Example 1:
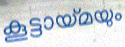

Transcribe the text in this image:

കൂട്ടായ്മയും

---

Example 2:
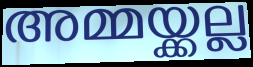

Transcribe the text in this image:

അമ്മയ്ക്കല്ല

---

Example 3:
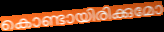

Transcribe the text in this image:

കൊണ്ടായിരിക്കുമോ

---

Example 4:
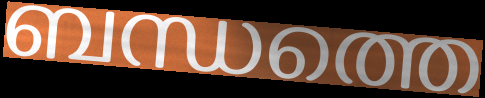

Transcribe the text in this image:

ബന്ധത്തെ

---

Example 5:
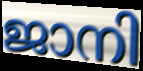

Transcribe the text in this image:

ജാനി